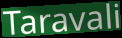
Taravali